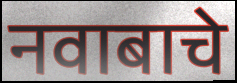
नवाबाचे